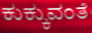
ಕುಕ್ಕುವಂತೆ